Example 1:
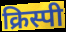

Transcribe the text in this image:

क्रिस्पी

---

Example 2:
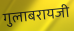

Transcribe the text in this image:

गुलाबरायजी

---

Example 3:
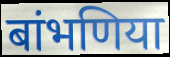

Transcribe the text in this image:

बांभणिया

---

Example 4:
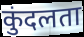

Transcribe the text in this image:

कुंदलता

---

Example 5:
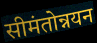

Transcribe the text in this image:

सीमंतोन्नयन